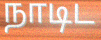
நாடிட